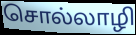
சொல்லாழி